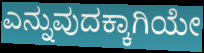
ಎನ್ನುವುದಕ್ಕಾಗಿಯೇ